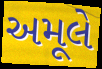
અમૂલે